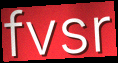
fvsr